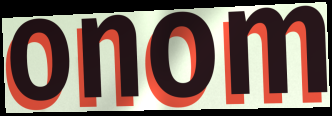
onom